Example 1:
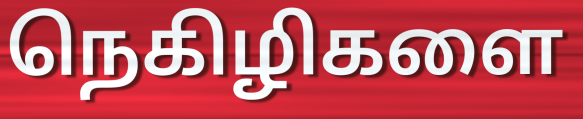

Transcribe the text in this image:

நெகிழிகளை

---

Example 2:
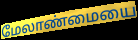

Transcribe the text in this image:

மேலாண்மையை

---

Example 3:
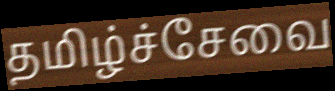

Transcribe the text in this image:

தமிழ்ச்சேவை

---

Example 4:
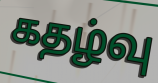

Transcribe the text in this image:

கதழ்வு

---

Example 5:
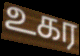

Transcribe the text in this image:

உகர